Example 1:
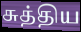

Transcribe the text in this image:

சுத்திய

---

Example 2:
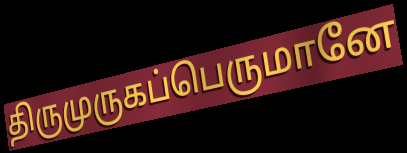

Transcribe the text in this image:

திருமுருகப்பெருமானே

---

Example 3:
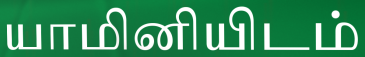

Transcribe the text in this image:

யாமினியிடம்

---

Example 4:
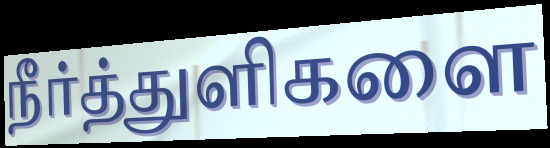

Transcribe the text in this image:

நீர்த்துளிகளை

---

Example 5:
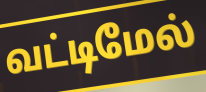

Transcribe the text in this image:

வட்டிமேல்